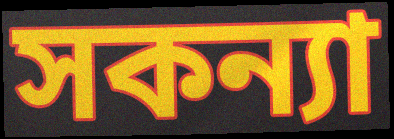
সকন্যা